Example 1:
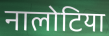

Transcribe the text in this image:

नालोटिया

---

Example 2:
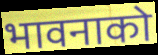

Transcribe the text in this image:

भावनाको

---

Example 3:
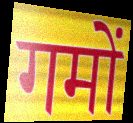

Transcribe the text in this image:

गमों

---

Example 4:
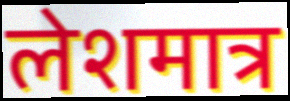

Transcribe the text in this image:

लेशमात्र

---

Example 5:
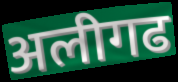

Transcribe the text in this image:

अलीगढ